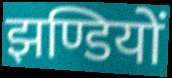
झण्डियों